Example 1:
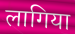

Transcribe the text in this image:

लागिया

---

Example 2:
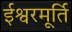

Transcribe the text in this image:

ईश्वरमूर्ति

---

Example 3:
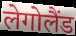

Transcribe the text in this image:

लेगोलैंड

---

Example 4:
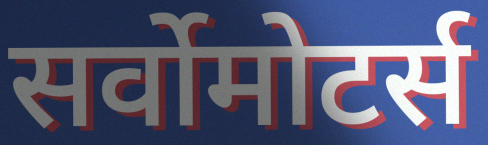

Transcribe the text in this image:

सर्वोमोटर्स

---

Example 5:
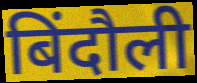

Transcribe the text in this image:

बिंदौली